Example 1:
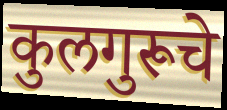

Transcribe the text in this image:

कुलगुरूचे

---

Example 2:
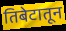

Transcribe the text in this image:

तिबेटातून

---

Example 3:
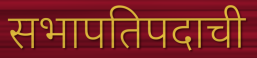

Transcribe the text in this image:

सभापतिपदाची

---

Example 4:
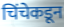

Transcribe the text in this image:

चिंचेकडून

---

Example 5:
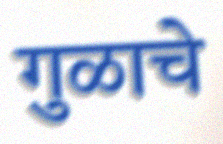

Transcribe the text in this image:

गुळाचे